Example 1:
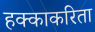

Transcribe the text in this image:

हक्काकरिता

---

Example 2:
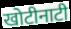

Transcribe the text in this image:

खोटीनाटी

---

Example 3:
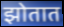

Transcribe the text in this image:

झोतात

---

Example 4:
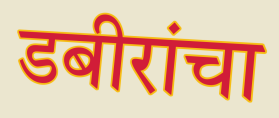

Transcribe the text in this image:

डबीरांचा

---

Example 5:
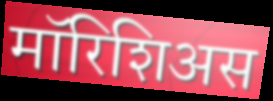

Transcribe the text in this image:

मॉरिशिअस